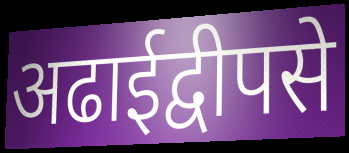
अढाईद्वीपसे